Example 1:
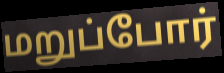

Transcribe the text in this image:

மறுப்போர்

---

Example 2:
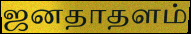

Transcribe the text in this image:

ஜனதாதளம்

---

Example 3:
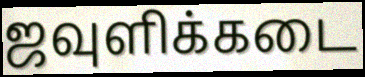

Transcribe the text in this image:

ஜவுளிக்கடை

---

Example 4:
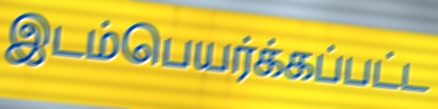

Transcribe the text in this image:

இடம்பெயர்க்கப்பட்ட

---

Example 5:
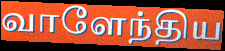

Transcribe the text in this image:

வாளேந்திய